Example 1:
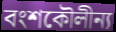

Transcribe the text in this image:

বংশকৌলীন্য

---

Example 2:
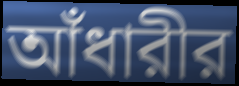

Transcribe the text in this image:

আঁধারীর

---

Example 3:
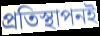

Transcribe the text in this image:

প্রতিস্থাপনই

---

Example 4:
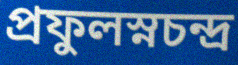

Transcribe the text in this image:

প্রফুলস্নচন্দ্র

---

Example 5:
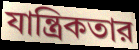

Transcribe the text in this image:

যান্ত্রিকতার